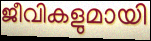
ജീവികളുമായി